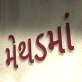
મેથડમાં